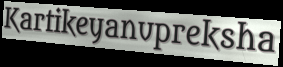
Kartikeyanupreksha